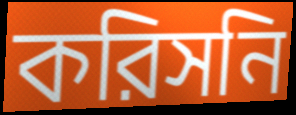
করিসনি